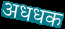
अधधक